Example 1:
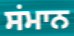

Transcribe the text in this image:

ਸਂਮਾਨ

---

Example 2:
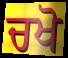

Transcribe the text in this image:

ਚਖੋ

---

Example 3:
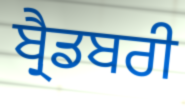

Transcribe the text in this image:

ਬ੍ਰੈਡਬਰੀ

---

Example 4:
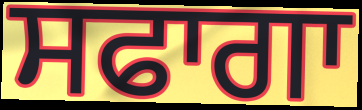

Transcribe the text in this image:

ਸਫਾਗਾ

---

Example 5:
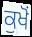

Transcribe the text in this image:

ਕੁਖੋਂ